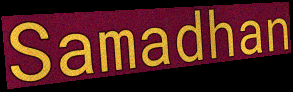
Samadhan